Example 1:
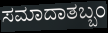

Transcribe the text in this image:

ಸಮಾದಾತಬ್ಬಂ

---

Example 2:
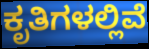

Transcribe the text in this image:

ಕೃತಿಗಳಲ್ಲಿವೆ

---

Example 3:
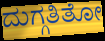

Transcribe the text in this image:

ದುಗ್ಗತಿತೋ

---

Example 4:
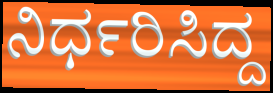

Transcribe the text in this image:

ನಿರ್ಧರಿಸಿದ್ದ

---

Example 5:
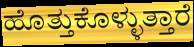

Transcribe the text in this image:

ಹೊತ್ತುಕೊಳ್ಳುತ್ತಾರೆ